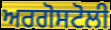
ਅਰਗੋਸਟੋਲੀ